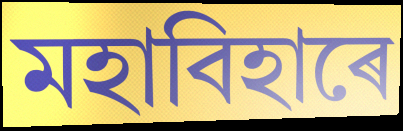
মহাবিহাৰে